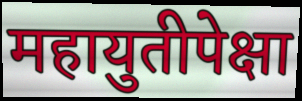
महायुतीपेक्षा